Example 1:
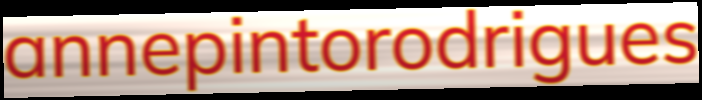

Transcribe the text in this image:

annepintorodrigues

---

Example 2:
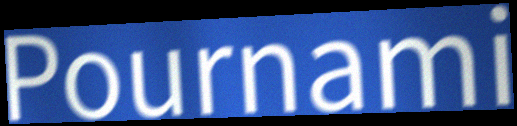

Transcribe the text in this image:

Pournami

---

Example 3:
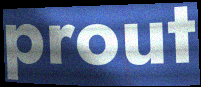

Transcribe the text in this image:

prout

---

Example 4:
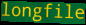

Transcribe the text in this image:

longfile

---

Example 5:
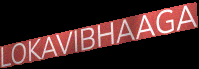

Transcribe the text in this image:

LOKAVIBHAAGA